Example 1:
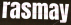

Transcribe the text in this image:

rasmay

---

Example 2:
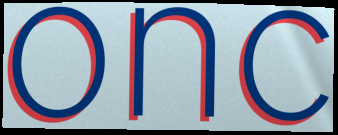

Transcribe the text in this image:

onc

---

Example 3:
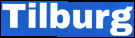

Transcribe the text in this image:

Tilburg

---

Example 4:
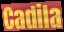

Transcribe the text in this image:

Cadila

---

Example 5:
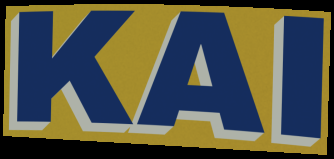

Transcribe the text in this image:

KAI